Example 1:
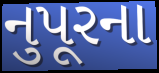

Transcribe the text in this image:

નુપૂરના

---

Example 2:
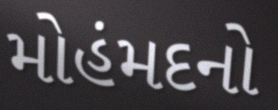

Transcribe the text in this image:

મોહંમદનો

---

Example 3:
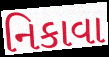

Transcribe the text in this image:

નિકાવા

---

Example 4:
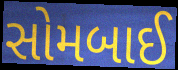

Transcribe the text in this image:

સોમબાઈ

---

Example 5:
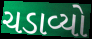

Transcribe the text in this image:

ચડાવ્યો